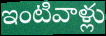
ఇంటివాళ్లు